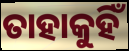
ତାହାକୁହିଁ